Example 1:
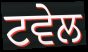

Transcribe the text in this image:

ਟਵੇਲ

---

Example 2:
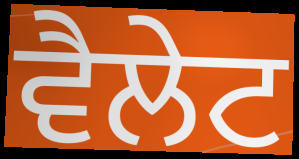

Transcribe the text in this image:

ਵੈਲੇਟ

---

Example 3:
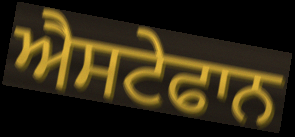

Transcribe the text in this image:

ਐਸਟੇਫਾਨ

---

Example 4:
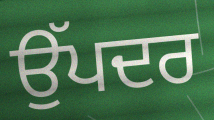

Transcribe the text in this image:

ਉੱਪਦਰ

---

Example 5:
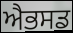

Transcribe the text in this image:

ਐਭਸਡ